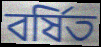
বর্ষিত